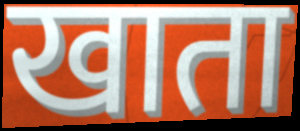
खाता